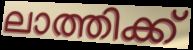
ലാത്തിക്ക്